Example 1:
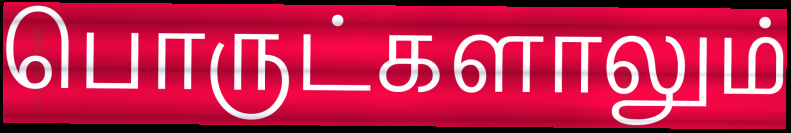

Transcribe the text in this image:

பொருட்களாலும்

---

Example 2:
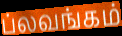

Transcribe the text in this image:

ப்லவங்கம்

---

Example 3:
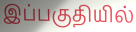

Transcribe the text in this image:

இப்பகுதியில்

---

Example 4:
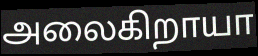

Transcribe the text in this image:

அலைகிறாயா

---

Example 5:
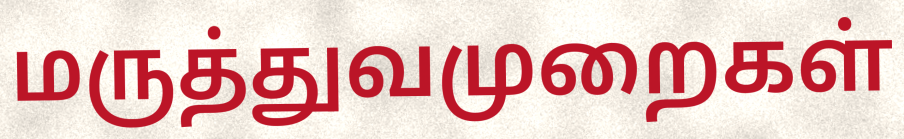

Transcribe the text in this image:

மருத்துவமுறைகள்